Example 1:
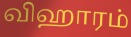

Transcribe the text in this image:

விஹாரம்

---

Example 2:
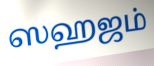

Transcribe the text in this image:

ஸஹஜம்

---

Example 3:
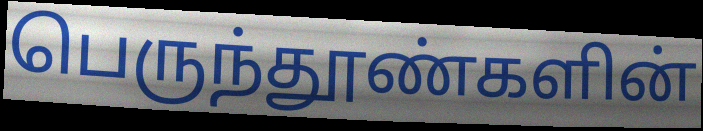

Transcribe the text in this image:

பெருந்தூண்களின்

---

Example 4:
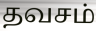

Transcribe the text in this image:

தவசம்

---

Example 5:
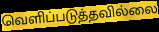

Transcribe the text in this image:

வெளிப்படுத்தவில்லை